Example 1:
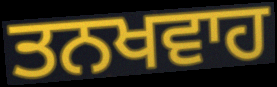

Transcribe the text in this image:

ਤਨਖਵਾਹ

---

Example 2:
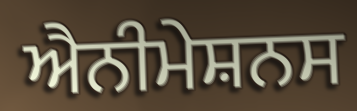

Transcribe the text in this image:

ਐਨੀਮੇਸ਼ਨਸ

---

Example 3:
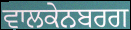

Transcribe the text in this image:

ਵਾਲਕੇਨਬਰਗ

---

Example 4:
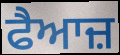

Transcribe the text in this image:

ਫੈਆਜ਼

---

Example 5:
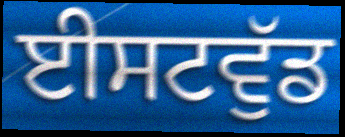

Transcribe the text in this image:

ਈਸਟਵੁੱਡ